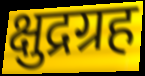
क्षुद्रग्रह